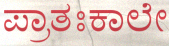
ಪ್ರಾತಃಕಾಲೇ